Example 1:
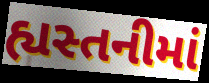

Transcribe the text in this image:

હ્યસ્તનીમાં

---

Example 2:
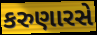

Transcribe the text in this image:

કરુણારસે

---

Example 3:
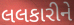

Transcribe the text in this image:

લલકારીને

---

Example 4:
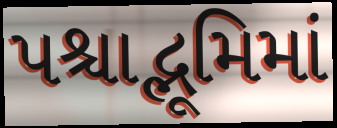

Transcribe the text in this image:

પશ્ચાદ્ભૂમિમાં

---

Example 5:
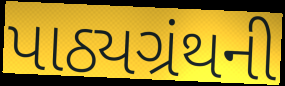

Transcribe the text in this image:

પાઠ્યગ્રંથની